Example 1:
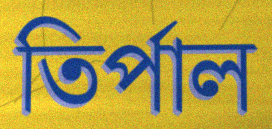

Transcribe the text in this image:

তিৰ্পাল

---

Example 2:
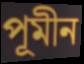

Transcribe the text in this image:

পূমীন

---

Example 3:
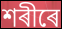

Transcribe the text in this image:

শৰীৰে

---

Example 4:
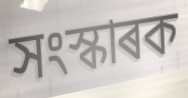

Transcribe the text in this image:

সংস্কাৰক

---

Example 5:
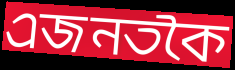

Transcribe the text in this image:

এজনতকৈ